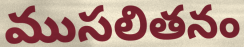
ముసలితనం